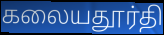
கலையதூர்தி